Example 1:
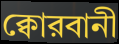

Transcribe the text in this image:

ক্বোরবানী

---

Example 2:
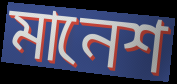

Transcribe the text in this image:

মানেশ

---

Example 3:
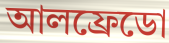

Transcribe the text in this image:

আলফ্রেডো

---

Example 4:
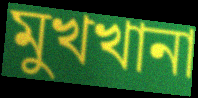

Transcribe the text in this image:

মুখখানা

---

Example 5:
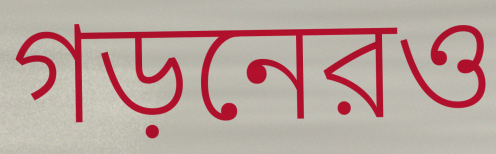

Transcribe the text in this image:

গড়নেরও